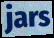
jars